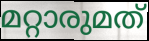
മറ്റാരുമത്